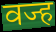
वज्ह